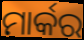
ମାର୍କର